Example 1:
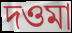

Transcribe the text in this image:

দওমা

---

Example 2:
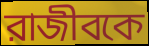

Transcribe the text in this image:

রাজীবকে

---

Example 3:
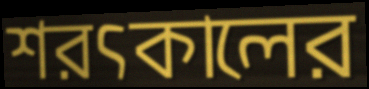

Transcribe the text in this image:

শরৎকালের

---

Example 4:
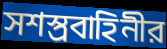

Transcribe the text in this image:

সশস্ত্রবাহিনীর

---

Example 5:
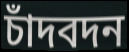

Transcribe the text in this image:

চাঁদবদন